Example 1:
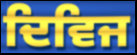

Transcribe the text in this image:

ਦਿਵਿਜ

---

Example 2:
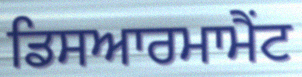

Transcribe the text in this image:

ਡਿਸਆਰਮਾਮੈਂਟ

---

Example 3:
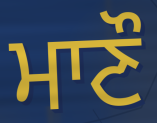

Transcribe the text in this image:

ਮਾਣੌ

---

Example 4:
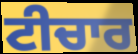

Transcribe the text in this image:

ਟੀਚਾਰ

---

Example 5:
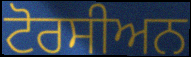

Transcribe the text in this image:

ਟੋਰਸੀਅਨ